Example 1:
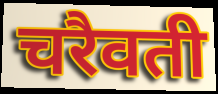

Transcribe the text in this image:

चरैवती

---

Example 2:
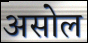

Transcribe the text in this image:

असोल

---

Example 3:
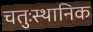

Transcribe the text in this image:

चतुःस्थानिक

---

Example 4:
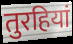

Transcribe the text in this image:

तुरहियां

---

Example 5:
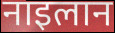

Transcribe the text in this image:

नाइलान